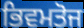
ਭਿਵਮਤੋਜ